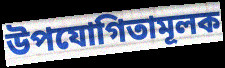
উপযোগিতামূলক